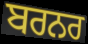
ਬਰਨਰ